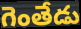
గెంతేడు